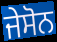
ਜੇਸੋਨ